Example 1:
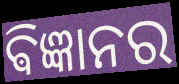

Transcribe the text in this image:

ଵିଜ୍ଞାନର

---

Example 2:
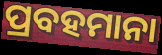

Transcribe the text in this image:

ପ୍ରବହମାନା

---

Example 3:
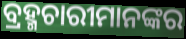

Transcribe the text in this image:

ବ୍ରହ୍ମଚାରୀମାନଙ୍କର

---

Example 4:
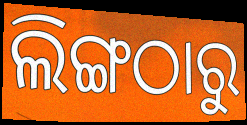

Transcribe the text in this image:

ଲିଙ୍ଗଠାରୁ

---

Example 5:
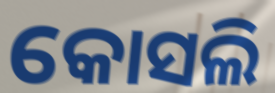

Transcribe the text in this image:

କୋସଲି